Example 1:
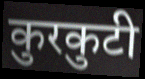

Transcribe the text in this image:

कुरकुटी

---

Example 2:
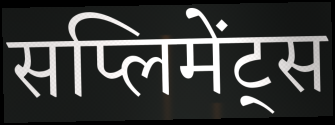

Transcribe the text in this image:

सप्लिमेंट्स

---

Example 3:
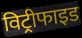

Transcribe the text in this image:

विट्रीफाइड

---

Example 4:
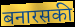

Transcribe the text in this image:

बनारसकी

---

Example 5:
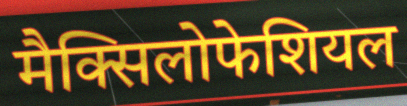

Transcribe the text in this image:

मैक्सिलोफेशियल